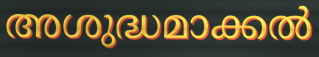
അശുദ്ധമാക്കൽ